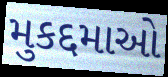
મુકદ્દમાઓ